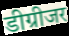
डीग्रीजर